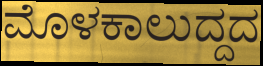
ಮೊಳಕಾಲುದ್ದದ